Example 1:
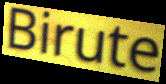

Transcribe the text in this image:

Birute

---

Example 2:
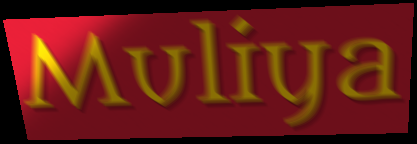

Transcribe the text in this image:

Muliya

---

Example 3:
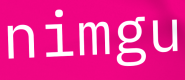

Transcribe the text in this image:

nimgu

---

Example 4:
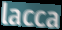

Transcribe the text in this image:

lacca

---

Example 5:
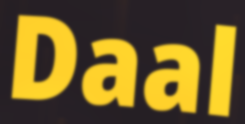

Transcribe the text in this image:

Daal